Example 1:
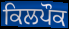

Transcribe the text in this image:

ਕਿਲਪੌਕ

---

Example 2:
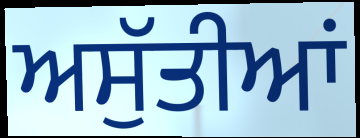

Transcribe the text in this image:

ਅਸੁੱਤੀਆਂ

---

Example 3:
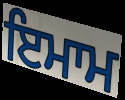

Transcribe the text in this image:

ਇਮਾਮ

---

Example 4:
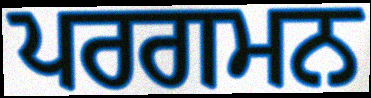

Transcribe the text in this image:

ਪਰਗਮਨ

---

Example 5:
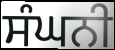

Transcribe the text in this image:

ਸੰਘਨੀ